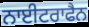
ਨਾਈਟਰਾਫੈਨ